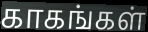
காகங்கள்